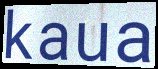
kaua